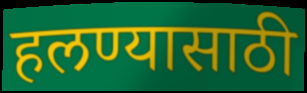
हलण्यासाठी